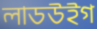
লাডউইগ